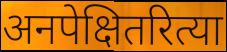
अनपेक्षितरित्या